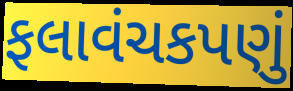
ફલાવંચકપણું